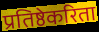
प्रतिष्ठेकरिता